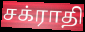
சக்ராதி